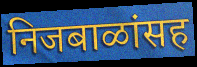
निजबाळांसह